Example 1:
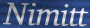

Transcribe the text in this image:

Nimitt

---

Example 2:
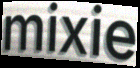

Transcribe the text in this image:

mixie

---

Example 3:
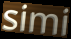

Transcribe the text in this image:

simi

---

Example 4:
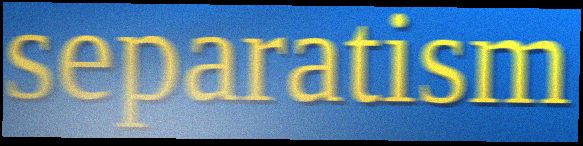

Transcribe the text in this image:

separatism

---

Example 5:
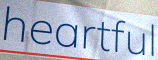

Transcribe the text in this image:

heartful